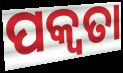
ପକ୍ୱତା